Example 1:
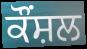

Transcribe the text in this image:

ਕੌਂਸ਼ਲ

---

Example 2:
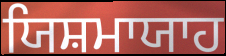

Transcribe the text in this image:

ਯਿਸ਼ਮਾਯਾਹ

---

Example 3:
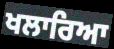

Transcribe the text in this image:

ਖਲਾਰਿਆ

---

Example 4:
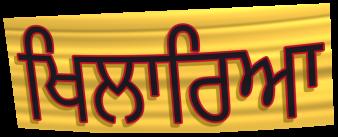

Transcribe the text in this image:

ਖਿਲਾਰਿਆ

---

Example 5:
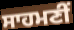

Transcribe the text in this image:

ਸਾਹਮਣੀਂ